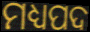
ମଧ୍ୟପଦ